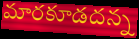
మారకూడదన్న